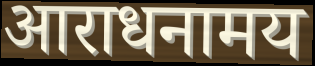
आराधनामय